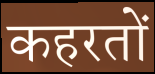
कहरतों